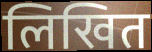
लिखित